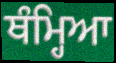
ਥੰਮ੍ਹਿਆ